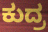
ಕುದ್ರ